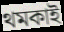
থমকাই